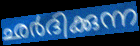
ഛർദിക്കുന്ന